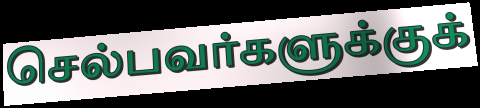
செல்பவர்களுக்குக்